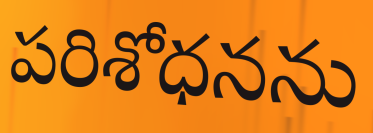
పరిశోధనను